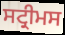
ਸਟ੍ਰੀਮਸ